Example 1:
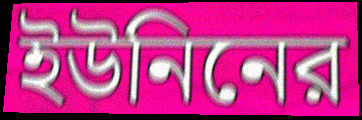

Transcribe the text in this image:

ইউনিনের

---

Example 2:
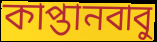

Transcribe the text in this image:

কাপ্তানবাবু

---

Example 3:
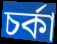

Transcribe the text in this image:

চর্কা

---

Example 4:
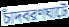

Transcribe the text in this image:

চাঁদবরণঘাটে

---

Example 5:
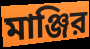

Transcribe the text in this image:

মাঞ্জির